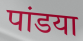
पांडया